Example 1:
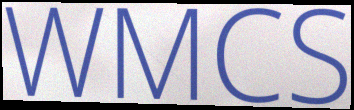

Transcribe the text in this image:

WMCS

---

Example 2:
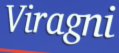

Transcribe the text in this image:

Viragni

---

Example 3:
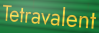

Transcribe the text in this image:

Tetravalent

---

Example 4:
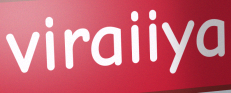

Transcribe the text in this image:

viraiiya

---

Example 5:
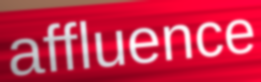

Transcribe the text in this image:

affluence